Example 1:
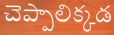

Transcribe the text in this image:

చెప్పాలిక్కడ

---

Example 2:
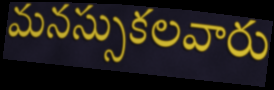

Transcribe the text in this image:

మనస్సుకలవారు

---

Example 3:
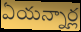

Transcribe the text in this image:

ఏయన్నార్ల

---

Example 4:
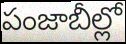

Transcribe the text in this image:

పంజాబీల్లో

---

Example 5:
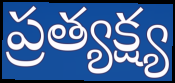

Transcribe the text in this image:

ప్రత్యక్ష్య